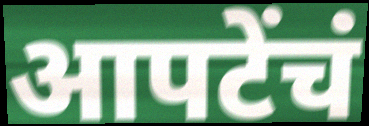
आपटेंचं